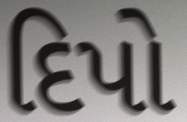
દિપો